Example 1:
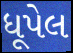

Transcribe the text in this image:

ધૂપેલ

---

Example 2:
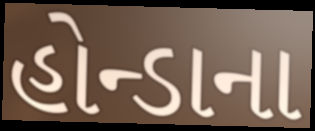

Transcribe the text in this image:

હોન્ડાના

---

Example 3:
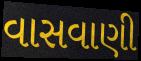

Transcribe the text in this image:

વાસવાણી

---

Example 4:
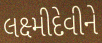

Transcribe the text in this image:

લક્ષ્મીદેવીને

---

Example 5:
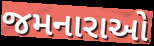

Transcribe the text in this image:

જમનારાઓ